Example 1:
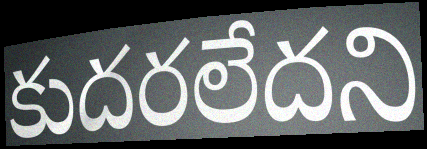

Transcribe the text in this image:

కుదరలేదని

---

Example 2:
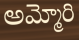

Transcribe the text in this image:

అమ్మోరి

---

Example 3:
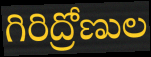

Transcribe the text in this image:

గిరిద్రోణుల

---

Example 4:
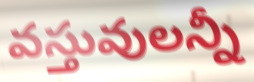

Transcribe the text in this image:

వస్తువులన్నీ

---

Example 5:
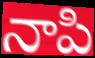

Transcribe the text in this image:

నాపి